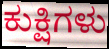
ಕುಕ್ಷಿಗಳು